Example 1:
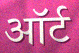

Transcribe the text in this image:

ऑर्ट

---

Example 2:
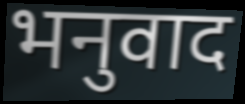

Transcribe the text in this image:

भनुवाद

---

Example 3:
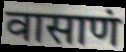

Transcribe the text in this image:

वासाणं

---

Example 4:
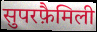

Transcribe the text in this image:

सुपरफ़ैमिली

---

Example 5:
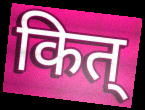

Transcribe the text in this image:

कित्